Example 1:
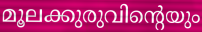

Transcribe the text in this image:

മൂലക്കുരുവിന്റെയും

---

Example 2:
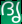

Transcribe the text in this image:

ദൃ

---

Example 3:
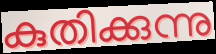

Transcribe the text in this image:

കുതിക്കുന്നു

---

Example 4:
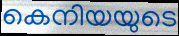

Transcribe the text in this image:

കെനിയയുടെ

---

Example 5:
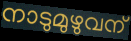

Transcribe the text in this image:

നാടുമുഴുവന്